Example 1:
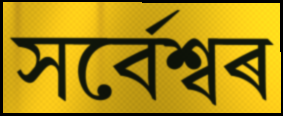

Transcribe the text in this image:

সৰ্বেশ্বৰ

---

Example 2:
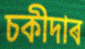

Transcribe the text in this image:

চকীদাৰ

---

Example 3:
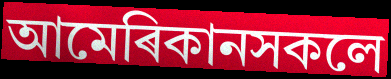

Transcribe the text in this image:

আমেৰিকানসকলে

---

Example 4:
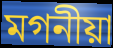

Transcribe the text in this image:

মগনীয়া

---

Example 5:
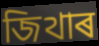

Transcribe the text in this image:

জিথাৰ